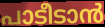
പാടീടാൻ